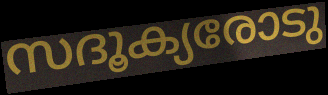
സദൂക്യരോടു